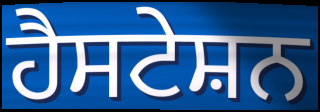
ਹੈਸਟੇਸ਼ਨ